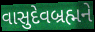
વાસુદેવબ્રહ્મને